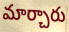
మార్చారు